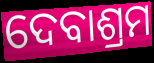
ଦେବାଶ୍ରମ